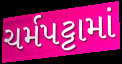
ચર્મપટ્ટામાં